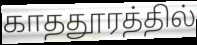
காததூரத்தில்